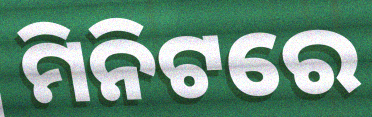
ମିନିଟରେ